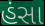
હંસા